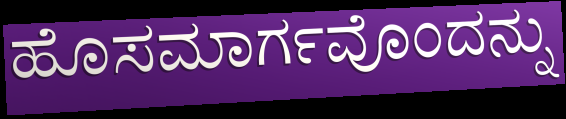
ಹೊಸಮಾರ್ಗವೊಂದನ್ನು